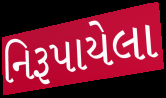
નિરૂપાયેલા